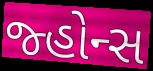
જ્હોન્સ